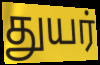
துயர்